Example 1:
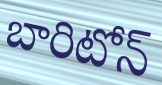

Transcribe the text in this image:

బారిటోన్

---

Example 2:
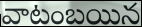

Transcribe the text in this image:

వాటంబయిన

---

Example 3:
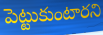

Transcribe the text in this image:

పెట్టుకుంటారని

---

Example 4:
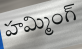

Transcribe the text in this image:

హమ్మింగ్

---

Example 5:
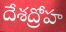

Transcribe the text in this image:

దేశద్రోహ